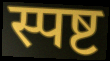
स्पष्ट